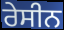
ਰੇਸੀਨ